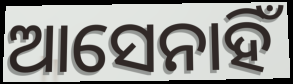
ଆସେନାହିଁ